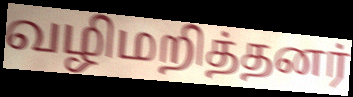
வழிமறித்தனர்